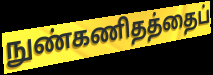
நுண்கணிதத்தைப்